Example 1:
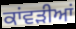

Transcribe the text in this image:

ਕਾਂਵੜੀਆਂ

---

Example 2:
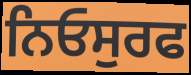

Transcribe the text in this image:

ਨਿਓਸੁਰਫ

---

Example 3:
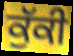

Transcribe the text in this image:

ਕੁੱਕੀ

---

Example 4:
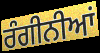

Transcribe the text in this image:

ਰੰਗੀਨੀਆਂ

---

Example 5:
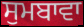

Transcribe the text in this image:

ਸੁਮਬਾਵਾ